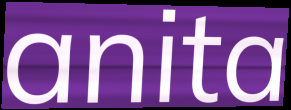
anita